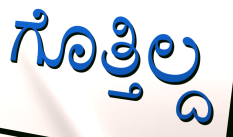
ಗೊತ್ತಿಲ್ದ